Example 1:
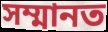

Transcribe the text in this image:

সম্মানত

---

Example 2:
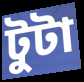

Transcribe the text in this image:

টুটা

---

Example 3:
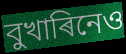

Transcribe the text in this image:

বুখাৰিনেও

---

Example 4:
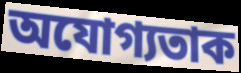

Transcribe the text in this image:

অযোগ্যতাক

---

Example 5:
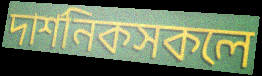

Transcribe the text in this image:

দাৰ্শনিকসকলে